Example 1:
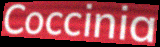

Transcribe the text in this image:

Coccinia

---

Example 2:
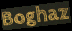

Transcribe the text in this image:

Boghaz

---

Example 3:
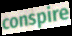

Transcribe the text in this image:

conspire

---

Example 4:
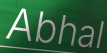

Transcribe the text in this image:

Abhal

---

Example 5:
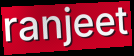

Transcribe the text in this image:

ranjeet